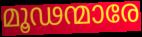
മൂഢന്മാരേ